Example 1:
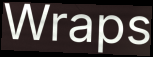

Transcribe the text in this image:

Wraps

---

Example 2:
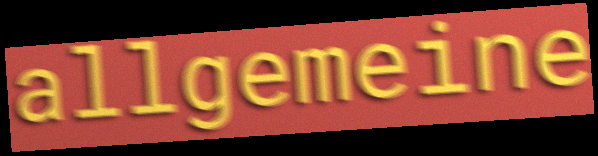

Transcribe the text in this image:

allgemeine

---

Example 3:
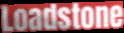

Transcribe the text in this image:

Loadstone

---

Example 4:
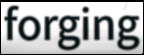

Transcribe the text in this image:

forging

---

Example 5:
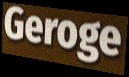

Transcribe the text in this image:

Geroge